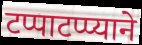
टप्पाटप्प्याने